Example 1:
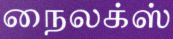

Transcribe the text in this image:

நைலக்ஸ்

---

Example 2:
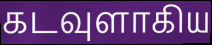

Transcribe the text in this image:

கடவுளாகிய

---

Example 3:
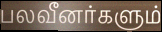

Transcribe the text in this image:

பலவீனர்களும்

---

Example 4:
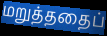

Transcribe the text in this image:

மறுத்ததைப்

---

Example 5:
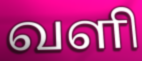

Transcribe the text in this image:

வளி